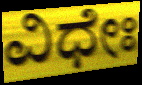
ವಿಧೇಃ